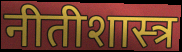
नीतीशास्त्र